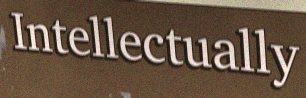
Intellectually